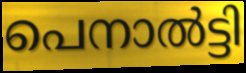
പെനാൽട്ടി